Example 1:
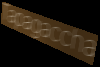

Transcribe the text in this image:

Tapagaccha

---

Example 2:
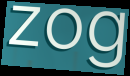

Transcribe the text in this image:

zog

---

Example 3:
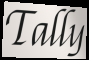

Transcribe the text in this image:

Tally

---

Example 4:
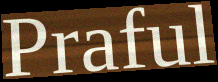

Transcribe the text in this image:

Praful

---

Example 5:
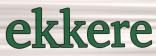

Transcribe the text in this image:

ekkere